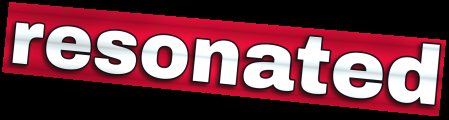
resonated